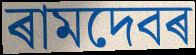
ৰামদেবৰ